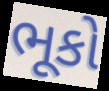
ભૂકો